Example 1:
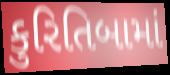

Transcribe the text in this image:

કુરિતિબામાં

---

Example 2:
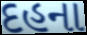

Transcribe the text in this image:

દહના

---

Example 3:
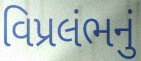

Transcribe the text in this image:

વિપ્રલંભનું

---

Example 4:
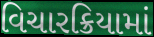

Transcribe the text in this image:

વિચારક્રિયામાં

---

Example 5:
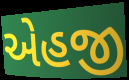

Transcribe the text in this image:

એહજી